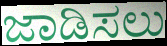
ಜಾಡಿಸಲು